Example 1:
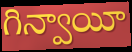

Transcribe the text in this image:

గిన్వాయీ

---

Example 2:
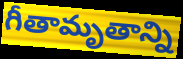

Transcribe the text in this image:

గీతామృతాన్ని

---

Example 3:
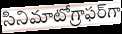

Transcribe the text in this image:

సినిమాటోగ్రాఫర్‌గా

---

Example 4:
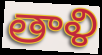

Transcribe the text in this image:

తాళి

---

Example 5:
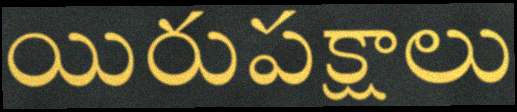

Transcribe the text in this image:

యిరుపక్షాలు